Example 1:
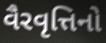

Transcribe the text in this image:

વૈરવૃત્તિનો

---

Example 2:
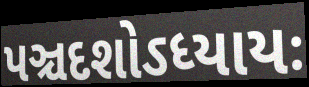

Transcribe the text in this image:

પઞ્ચદશોઽધ્યાયઃ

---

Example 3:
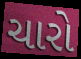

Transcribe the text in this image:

ચારો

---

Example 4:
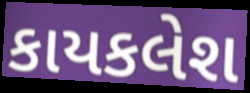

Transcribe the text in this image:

કાયકલેશ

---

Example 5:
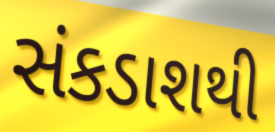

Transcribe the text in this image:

સંકડાશથી